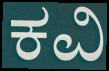
ಕವಿ